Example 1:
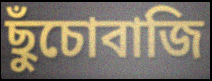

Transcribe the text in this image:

ছুঁচোবাজি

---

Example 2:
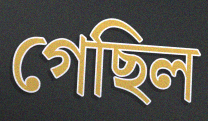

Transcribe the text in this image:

গেছিল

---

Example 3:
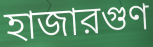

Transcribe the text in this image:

হাজারগুণ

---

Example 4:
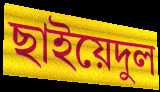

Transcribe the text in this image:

ছাইয়েদুল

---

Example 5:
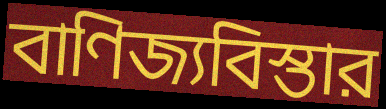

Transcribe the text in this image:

বাণিজ্যবিস্তার